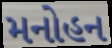
મનોહન